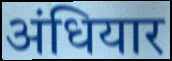
अंधियार